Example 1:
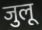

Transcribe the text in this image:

जुलू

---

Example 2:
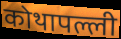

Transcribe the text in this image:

कोथापल्ली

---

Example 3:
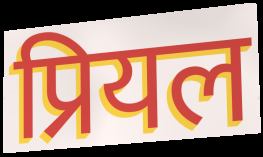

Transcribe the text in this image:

प्रियल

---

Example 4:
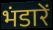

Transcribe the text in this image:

भंडारें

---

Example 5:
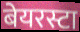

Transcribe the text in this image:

बेयरस्टा